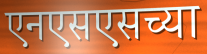
एनएसएसच्या